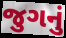
જુગનું